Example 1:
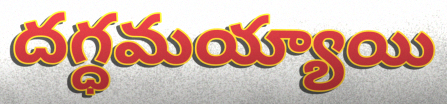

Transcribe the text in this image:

దగ్ధమయ్యాయి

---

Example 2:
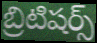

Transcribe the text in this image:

బ్రిటిషర్స్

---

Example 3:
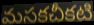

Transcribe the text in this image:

మసకచీకటి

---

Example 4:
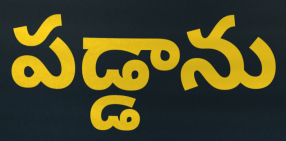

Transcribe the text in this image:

పడ్డాను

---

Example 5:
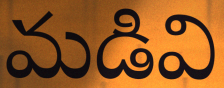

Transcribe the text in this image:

మడివి